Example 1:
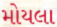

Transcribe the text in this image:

મોયલા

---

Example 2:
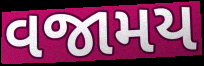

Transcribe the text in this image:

વજામય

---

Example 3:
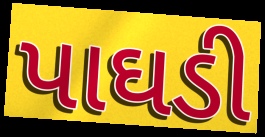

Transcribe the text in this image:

પાઘડી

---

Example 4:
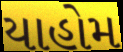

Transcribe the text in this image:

યાહોમ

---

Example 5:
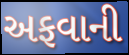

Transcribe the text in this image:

અફવાની